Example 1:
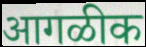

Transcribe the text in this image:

आगळीक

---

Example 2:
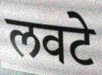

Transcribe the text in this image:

लवटे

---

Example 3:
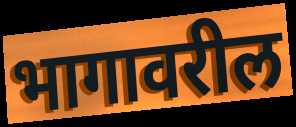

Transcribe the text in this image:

भागावरील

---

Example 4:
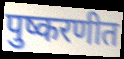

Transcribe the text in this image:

पुष्करणीत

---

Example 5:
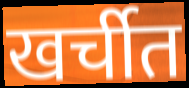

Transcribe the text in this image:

खर्चीत